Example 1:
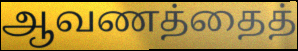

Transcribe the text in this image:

ஆவணத்தைத்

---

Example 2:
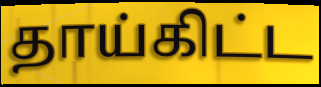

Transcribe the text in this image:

தாய்கிட்ட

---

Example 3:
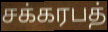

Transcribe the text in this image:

சக்கரபத்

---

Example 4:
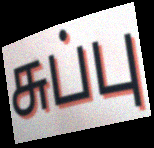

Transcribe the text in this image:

சுப்பு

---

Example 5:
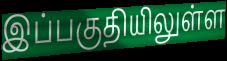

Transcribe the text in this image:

இப்பகுதியிலுள்ள